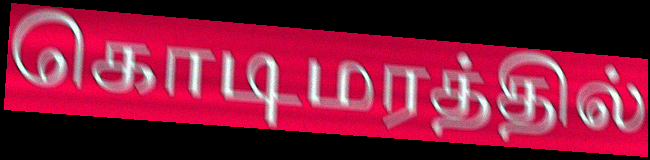
கொடிமரத்தில்